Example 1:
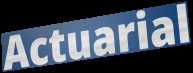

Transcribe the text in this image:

Actuarial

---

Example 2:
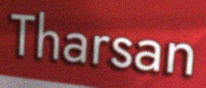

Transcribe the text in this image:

Tharsan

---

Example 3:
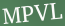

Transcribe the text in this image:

MPVL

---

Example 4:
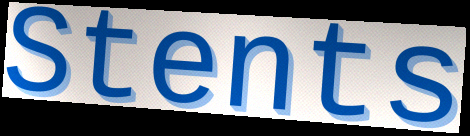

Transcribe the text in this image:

Stents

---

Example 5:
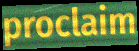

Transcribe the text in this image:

proclaim